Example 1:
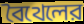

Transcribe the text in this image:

বৈথেলের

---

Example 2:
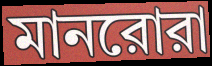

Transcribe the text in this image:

মানরোরা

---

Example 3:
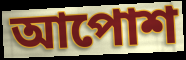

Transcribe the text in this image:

আপোশ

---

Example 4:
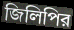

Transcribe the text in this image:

জিলিপির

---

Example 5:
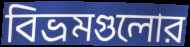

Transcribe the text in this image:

বিভ্রমগুলোর